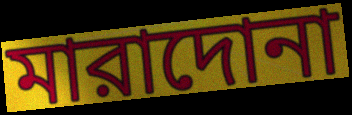
মারাদোনা